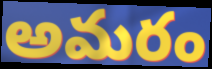
అమరం